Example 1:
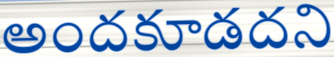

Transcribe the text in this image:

అందకూడదని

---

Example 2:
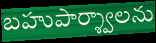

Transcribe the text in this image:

బహుపార్శ్వాలను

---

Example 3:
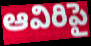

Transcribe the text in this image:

ఆవిరిపై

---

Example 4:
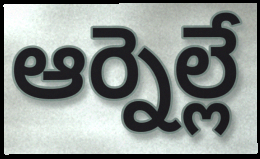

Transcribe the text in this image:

ఆర్నెల్లే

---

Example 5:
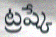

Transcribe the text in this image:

ట్రష్కే